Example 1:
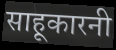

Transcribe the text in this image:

साहूकारनी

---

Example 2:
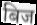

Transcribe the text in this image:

बिज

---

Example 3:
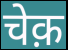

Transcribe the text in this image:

चेक़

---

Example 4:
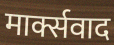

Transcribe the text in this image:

मार्क्सवाद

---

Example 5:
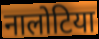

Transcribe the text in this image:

नालोटिया